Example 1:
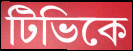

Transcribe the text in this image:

টিভিকে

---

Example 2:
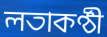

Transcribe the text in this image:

লতাকণ্ঠী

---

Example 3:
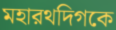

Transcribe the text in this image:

মহারথদিগকে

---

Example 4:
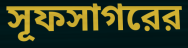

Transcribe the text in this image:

সূফসাগরের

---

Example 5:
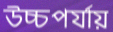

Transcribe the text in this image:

উচ্চপর্যায়